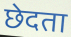
छेदता